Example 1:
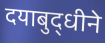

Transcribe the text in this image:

दयाबुद्धीने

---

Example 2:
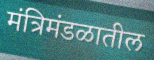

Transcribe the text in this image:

मंत्रिमंडळातील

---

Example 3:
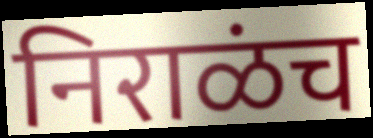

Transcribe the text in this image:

निराळंच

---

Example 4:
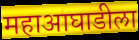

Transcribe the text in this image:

महाआघाडीला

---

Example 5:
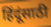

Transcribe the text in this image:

हिंदूंसाठी